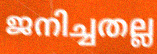
ജനിച്ചതല്ല